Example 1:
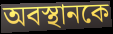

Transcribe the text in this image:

অবস্থানকে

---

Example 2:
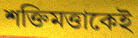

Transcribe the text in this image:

শক্তিমত্তাকেই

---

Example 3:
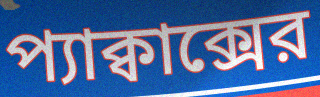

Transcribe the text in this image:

প্যাক্বাক্সের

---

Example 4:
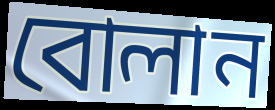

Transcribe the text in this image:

বোলান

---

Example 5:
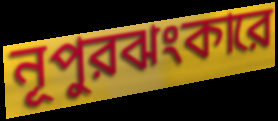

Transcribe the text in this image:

নূপুরঝংকারে